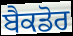
ਬੈਕਡੋਰ